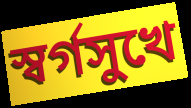
স্বর্গসুখে